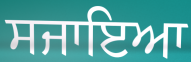
ਸਜਾਇਆ